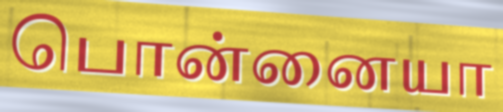
பொன்னையா